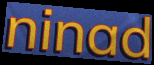
ninad